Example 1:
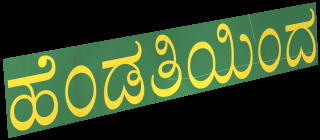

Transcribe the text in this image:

ಹೆಂಡತಿಯಿಂದ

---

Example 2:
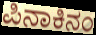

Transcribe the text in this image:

ಪಿನಾಕಿನಂ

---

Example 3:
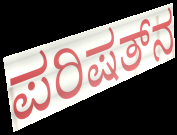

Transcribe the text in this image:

ಪರಿಷತ್‌ನ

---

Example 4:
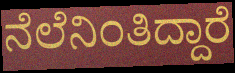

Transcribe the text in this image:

ನೆಲೆನಿಂತಿದ್ದಾರೆ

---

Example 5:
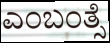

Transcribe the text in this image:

ಎಂಬಂತ್ಸೆ